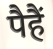
पैहैं